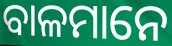
ବାଳମାନେ